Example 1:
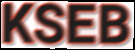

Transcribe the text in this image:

KSEB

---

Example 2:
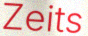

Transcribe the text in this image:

Zeits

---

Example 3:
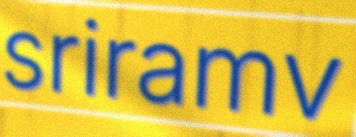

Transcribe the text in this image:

sriramv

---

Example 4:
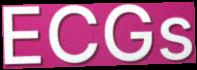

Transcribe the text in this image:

ECGs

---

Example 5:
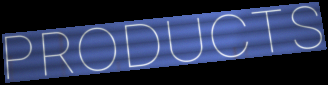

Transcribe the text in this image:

PRODUCTS